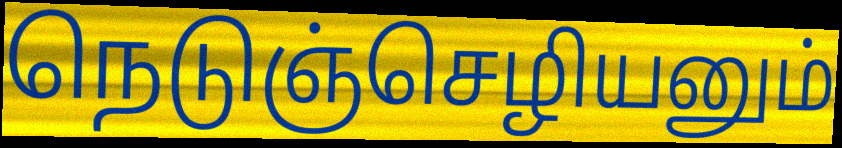
நெடுஞ்செழியனும்